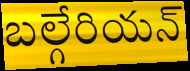
బల్గేరియన్